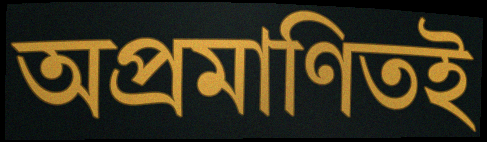
অপ্রমাণিতই